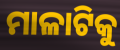
ମାଳାଟିକୁ